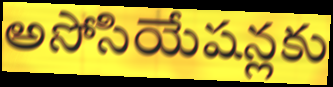
అసోసియేషన్లకు